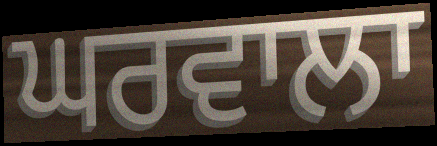
ਘਰਵਾਲਾ